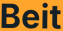
Beit